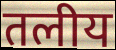
तलीय